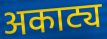
अकाट्य